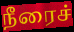
நீரைச்